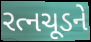
રત્નચૂડને